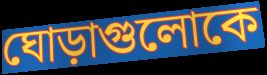
ঘোড়াগুলোকে